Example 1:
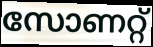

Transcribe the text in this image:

സോണറ്റ്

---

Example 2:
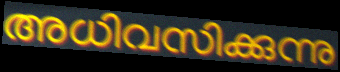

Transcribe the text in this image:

അധിവസിക്കുന്നു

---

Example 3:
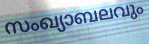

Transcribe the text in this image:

സംഖ്യാബലവും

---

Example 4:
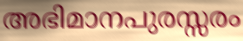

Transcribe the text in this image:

അഭിമാനപുരസ്സരം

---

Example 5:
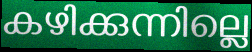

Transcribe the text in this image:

കഴിക്കുന്നില്ലെ